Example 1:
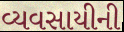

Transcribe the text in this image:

વ્યવસાયીની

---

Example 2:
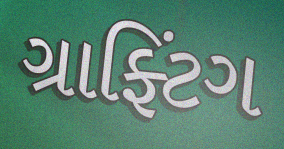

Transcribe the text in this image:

ગ્રાફ્ટિંગ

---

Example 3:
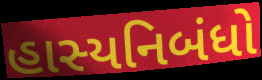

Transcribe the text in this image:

હાસ્યનિબંધો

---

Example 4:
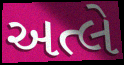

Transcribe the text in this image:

અત્લે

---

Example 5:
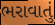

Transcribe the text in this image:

ભરાવાતું